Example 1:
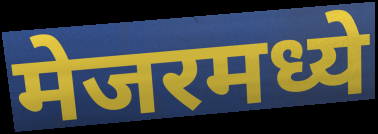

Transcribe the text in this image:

मेजरमध्ये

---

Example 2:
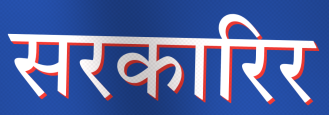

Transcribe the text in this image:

सरकारिर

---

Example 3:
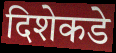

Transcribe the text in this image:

दिशेकडे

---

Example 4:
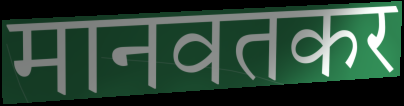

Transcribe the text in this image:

मानवतकर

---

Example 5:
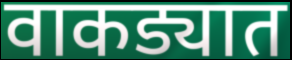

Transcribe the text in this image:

वाकड्यात